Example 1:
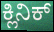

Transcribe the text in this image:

ಕ್ಲಿನಿಕ್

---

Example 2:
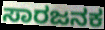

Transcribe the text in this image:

ಸಾರಜನಕ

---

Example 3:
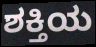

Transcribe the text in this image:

ಶಕ್ತಿಯ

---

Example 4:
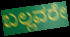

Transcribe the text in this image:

ಬಲ್ಲವರೇ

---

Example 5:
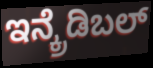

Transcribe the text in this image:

ಇನ್ಕ್ರೆಡಿಬಲ್